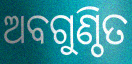
ଅବଗୁଣ୍ଠିତ